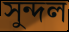
সুন্দল